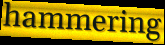
hammering